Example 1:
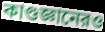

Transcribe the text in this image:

কাণ্ডজ্ঞানেরও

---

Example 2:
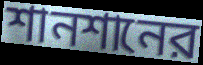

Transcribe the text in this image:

শানশানের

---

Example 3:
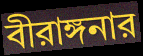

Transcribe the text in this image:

বীরাঙ্গনার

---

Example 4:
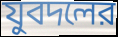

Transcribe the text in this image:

যুবদলের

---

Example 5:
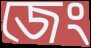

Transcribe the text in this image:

জেং